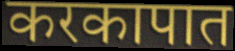
करकापात